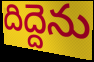
దిద్దెను